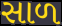
સાળ